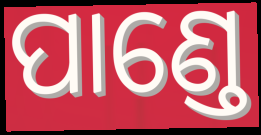
ପାଣ୍ଡେ